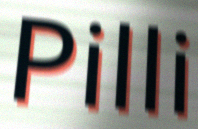
Pilli